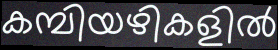
കമ്പിയഴികളിൽ